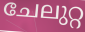
ചേലുറ്റ